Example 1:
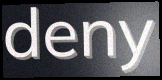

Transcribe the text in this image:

deny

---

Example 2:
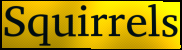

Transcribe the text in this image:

Squirrels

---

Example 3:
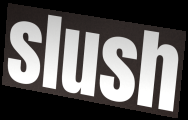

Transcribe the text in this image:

slush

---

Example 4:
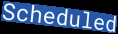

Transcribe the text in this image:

Scheduled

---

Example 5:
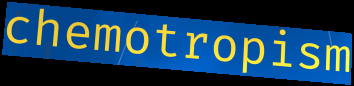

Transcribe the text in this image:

chemotropism